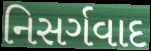
નિસર્ગવાદ